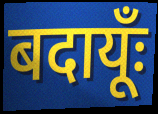
बदायूँः